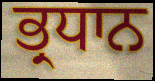
ਭ੍ਰਧਾਨ